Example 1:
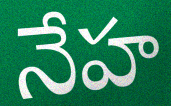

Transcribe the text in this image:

నేహ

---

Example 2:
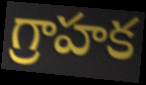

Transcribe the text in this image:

గ్రాహక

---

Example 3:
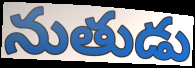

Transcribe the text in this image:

నుతుడు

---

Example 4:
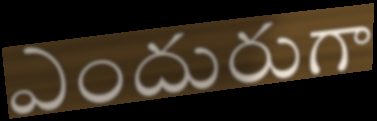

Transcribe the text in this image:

ఎందురుగా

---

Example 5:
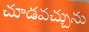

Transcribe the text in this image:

చూడవచ్చును